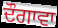
ਦੌਗਾਵਾ